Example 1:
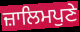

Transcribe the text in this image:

ਜ਼ਾਲਿਮਪੁਣੇ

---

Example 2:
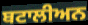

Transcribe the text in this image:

ਬਟਾਲੀਅਨ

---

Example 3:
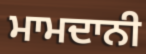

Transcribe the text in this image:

ਮਾਮਦਾਨੀ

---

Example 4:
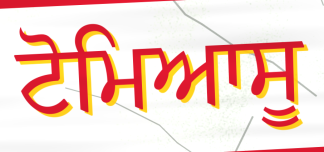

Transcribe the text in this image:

ਟੋਮਿਆਸੂ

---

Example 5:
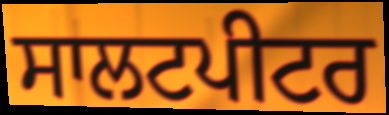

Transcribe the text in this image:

ਸਾਲਟਪੀਟਰ